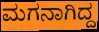
ಮಗನಾಗಿದ್ದ